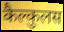
कैल्कुलस